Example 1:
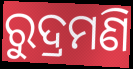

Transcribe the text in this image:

ରୁଦ୍ରମଣି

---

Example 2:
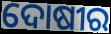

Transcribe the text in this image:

ଦୋଷୀର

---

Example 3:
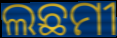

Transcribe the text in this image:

ଲଛମୀ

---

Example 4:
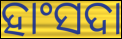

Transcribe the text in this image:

ହାଂସଦା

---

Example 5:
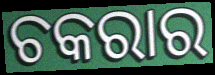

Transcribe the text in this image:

ଚକରାର